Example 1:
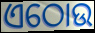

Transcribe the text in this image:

ଏଠୋଉ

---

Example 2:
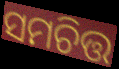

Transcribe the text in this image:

ସମଚିତ୍ତ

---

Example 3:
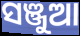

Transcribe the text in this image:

ସଞ୍ଜୁଆ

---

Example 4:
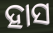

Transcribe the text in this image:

ହାସ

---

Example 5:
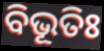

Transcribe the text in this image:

ବିଭୂତିଃ